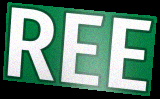
REE